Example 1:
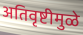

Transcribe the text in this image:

अतिवृष्टीमुळे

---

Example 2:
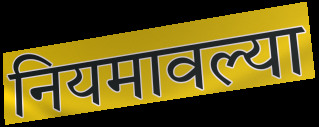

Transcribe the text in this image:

नियमावल्या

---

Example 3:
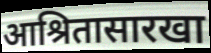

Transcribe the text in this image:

आश्रितासारखा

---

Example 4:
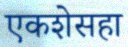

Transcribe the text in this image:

एकशेसहा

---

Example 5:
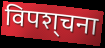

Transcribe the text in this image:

विपश्चना